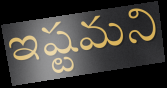
ఇష్టమని